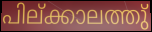
പില്ക്കാലത്തു്